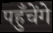
पहुँचेंगे